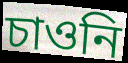
চাওনি